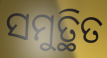
ସମୁତ୍ଥିତ